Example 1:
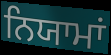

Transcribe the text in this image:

ਨਿਯਾਮਾਂ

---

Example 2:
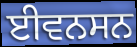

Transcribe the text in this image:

ਈਵਨਸਨ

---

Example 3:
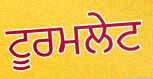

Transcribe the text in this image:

ਟੂਰਮਲੇਟ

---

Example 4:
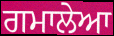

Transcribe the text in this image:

ਗਮਾਲੇਆ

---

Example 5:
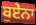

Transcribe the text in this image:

ਬੁਏਨਾ